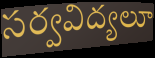
సర్వవిద్యలూ